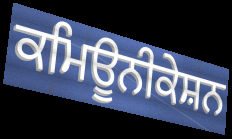
ਕਮਿਊਨੀਕੇਸ਼ਨ